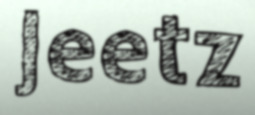
Jeetz